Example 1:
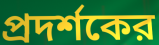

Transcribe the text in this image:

প্রদর্শকের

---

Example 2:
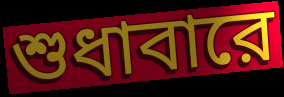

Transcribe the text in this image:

শুধাবারে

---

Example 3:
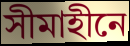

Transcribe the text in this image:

সীমাহীনে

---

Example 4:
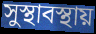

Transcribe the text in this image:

সুস্থাবস্থায়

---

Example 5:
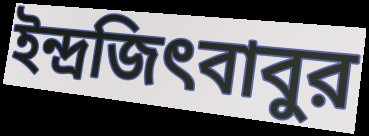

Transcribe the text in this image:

ইন্দ্রজিৎবাবুর